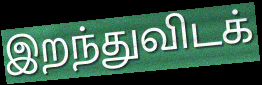
இறந்துவிடக்